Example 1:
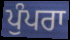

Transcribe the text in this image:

ਪੁੰਪਰਾ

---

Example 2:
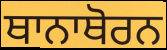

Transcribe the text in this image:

ਥਾਨਾਥੋਰਨ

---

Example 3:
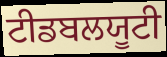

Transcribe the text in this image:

ਟੀਡਬਲਯੂਟੀ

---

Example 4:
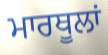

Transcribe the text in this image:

ਮਾਰਥੂਲਾਂ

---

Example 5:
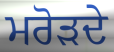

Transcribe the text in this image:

ਮਰੋੜਦੇ